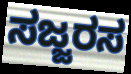
ಸಜ್ಜರಸ